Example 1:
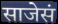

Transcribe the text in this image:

साजेसं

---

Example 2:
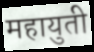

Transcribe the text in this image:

महायुती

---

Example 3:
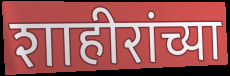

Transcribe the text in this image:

शाहीरांच्या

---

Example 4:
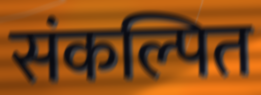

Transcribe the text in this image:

संकल्पित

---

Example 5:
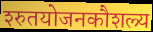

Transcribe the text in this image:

श्रुतयोजनकौशल्य